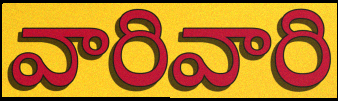
వారివారి